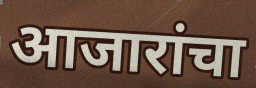
आजारांचा